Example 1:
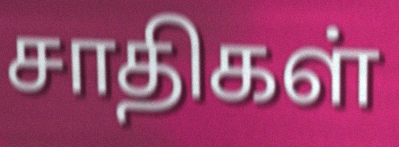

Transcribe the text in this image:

சாதிகள்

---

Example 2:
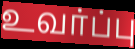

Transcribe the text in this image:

உவர்ப்பு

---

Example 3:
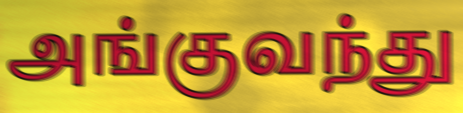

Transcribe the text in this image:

அங்குவந்து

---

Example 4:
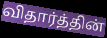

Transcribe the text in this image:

விதார்த்தின்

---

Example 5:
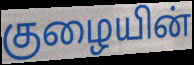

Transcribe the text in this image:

குழையின்